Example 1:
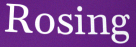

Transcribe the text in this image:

Rosing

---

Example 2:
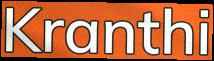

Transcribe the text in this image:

Kranthi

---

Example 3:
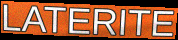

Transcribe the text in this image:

LATERITE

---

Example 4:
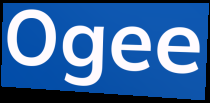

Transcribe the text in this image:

Ogee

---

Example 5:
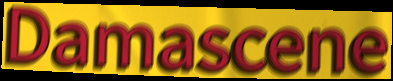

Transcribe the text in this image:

Damascene